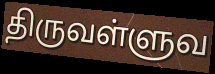
திருவள்ளுவ